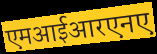
एमआईआरएनए